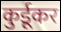
कुर्डूकर